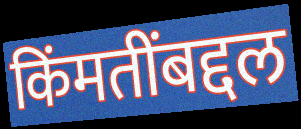
किंमतींबद्दल